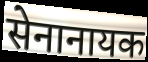
सेनानायक